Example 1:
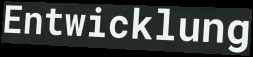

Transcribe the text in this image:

Entwicklung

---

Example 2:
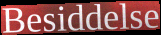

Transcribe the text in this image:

Besiddelse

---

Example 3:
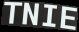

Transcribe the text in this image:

TNIE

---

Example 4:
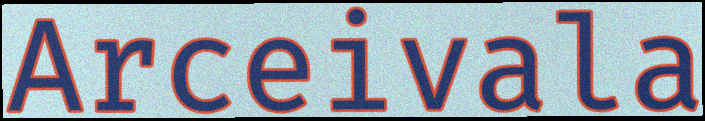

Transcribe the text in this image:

Arceivala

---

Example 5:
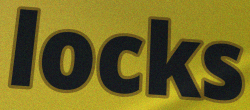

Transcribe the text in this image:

locks